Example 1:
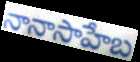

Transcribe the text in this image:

నానాసాహేబ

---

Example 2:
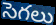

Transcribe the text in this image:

సెగలు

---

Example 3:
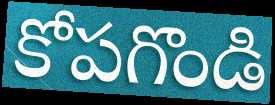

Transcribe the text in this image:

కోపగొండి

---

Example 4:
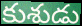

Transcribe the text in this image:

కుశుడు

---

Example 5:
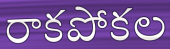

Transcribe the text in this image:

రాకపోకల